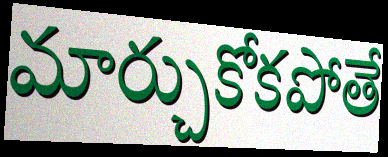
మార్చుకోకపోతే